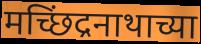
मच्छिंद्रनाथाच्या